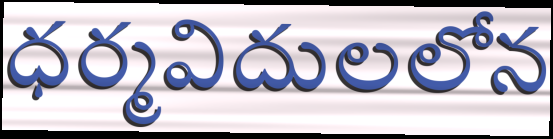
ధర్మవిదులలోన